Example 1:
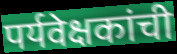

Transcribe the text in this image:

पर्यवेक्षकांची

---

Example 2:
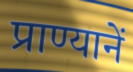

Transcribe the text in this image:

प्राण्यानें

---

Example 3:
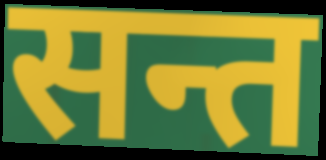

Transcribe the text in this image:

सन्त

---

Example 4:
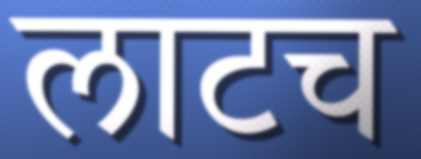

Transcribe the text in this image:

लाटच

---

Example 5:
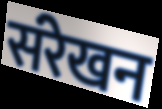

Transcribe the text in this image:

संरेखन